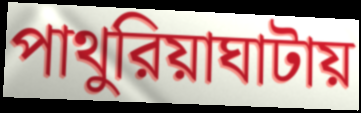
পাথুরিয়াঘাটায়